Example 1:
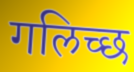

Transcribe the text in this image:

गलिच्छ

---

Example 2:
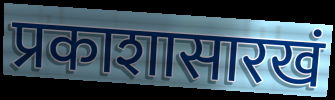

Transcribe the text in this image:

प्रकाशासारखं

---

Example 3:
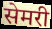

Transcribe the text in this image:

सेमरी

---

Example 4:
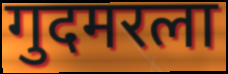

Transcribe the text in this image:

गुदमरला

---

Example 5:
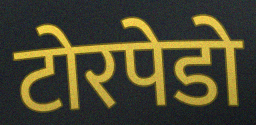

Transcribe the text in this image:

टोरपेडो